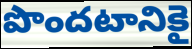
పొందటానికై